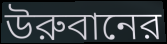
উরুবানের